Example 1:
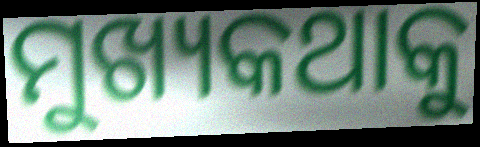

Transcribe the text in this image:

ମୁଖ୍ୟକଥାକୁ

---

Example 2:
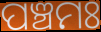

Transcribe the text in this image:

ପଞ୍ଚମଃ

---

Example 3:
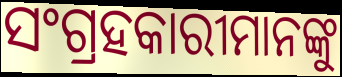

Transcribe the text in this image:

ସଂଗ୍ରହକାରୀମାନଙ୍କୁ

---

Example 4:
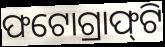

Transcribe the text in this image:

ଫଟୋଗ୍ରାଫ୍‌ଟି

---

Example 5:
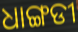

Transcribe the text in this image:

ଧାଙ୍ଗଡୀ